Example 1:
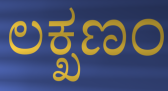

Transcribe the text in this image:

ಲಕ್ಖಣಂ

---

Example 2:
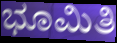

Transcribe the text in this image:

ಭೂಮಿತಿ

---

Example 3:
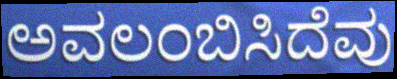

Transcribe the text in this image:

ಅವಲಂಬಿಸಿದೆವು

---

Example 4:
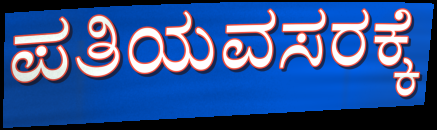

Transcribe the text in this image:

ಪತಿಯವಸರಕ್ಕೆ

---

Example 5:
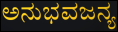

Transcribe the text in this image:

ಅನುಭವಜನ್ಯ